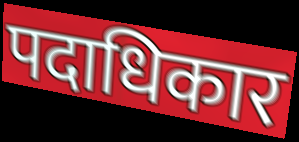
पदाधिकार